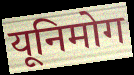
यूनिमोग